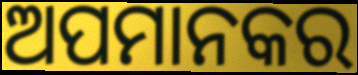
ଅପମାନକର